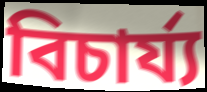
বিচাৰ্য্য